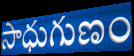
సాధుగుణం